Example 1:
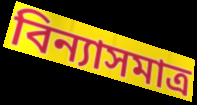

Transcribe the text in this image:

বিন্যাসমাত্র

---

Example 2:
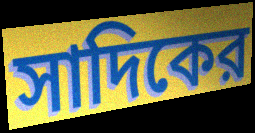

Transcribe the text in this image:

সাদিকের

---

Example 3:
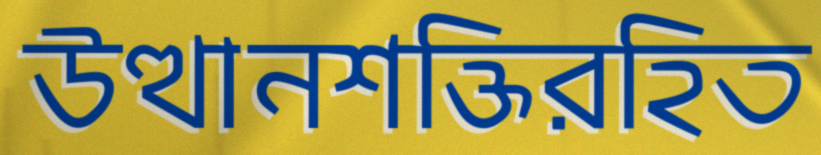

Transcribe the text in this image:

উত্থানশক্তিরহিত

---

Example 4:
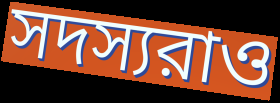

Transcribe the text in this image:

সদস্যরাও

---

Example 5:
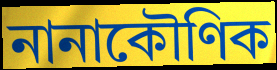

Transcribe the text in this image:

নানাকৌণিক